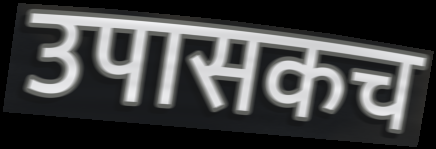
उपासकच